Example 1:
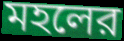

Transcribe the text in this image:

মহলের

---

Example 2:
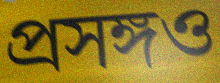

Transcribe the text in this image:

প্রসঙ্গও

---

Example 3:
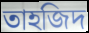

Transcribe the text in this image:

তাহজিদ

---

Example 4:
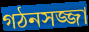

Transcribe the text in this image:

গঠনসজ্জা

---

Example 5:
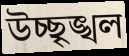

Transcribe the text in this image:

উচ্ছৃঙ্খল